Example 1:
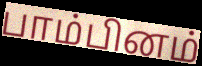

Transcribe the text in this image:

பாம்பினம்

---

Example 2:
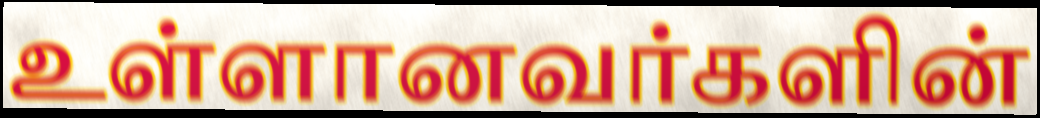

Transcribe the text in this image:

உள்ளானவர்களின்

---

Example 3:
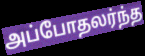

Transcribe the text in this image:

அப்போதலர்ந்த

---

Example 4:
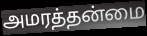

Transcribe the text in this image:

அமரத்தன்மை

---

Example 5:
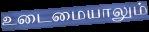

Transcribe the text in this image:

உடைமையாலும்